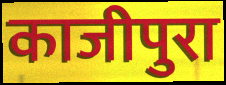
काजीपुरा